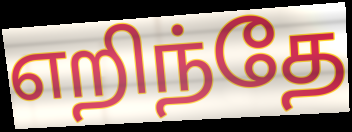
எறிந்தே